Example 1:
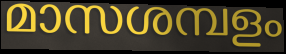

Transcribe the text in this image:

മാസശമ്പളം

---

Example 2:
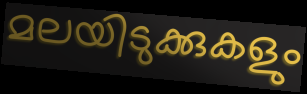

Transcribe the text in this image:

മലയിടുക്കുകളും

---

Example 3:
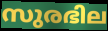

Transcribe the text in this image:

സുരഭില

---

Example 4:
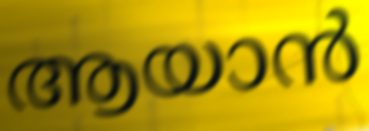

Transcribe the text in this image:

ആയാൻ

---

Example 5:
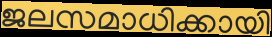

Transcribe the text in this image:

ജലസമാധിക്കായി